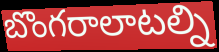
బొంగరాలాటల్ని